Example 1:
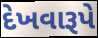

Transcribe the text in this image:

દેખવારૂપે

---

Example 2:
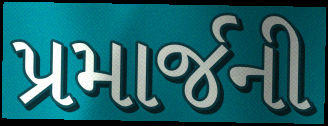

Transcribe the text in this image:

પ્રમાર્જની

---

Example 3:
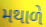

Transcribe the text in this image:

મથાળે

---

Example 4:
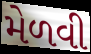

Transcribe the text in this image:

મેળવી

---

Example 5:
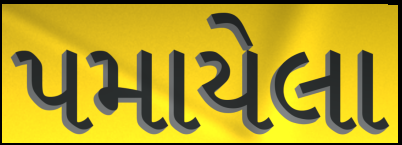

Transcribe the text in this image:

પમાયેલા